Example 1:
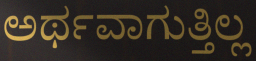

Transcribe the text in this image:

ಅರ್ಥವಾಗುತ್ತಿಲ್ಲ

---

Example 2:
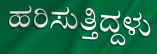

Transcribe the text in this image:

ಹರಿಸುತ್ತಿದ್ದಳು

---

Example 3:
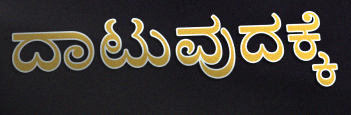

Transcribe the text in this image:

ದಾಟುವುದಕ್ಕೆ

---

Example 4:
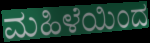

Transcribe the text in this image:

ಮಹಿಳೆಯಿಂದ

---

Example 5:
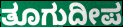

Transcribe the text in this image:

ತೂಗುದೀಪ